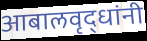
आबालवृद्धांनी